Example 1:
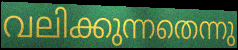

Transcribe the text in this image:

വലിക്കുന്നതെന്നു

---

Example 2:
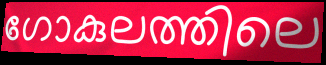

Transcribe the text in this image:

ഗോകുലത്തിലെ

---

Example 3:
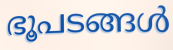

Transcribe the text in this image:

ഭൂപടങ്ങൾ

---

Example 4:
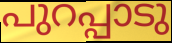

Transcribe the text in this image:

പുറപ്പാടു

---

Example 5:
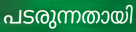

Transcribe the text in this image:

പടരുന്നതായി